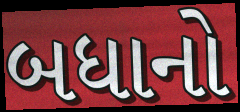
બધાનો